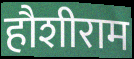
हौशीराम